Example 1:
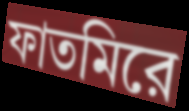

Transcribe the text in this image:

ফাতমিরে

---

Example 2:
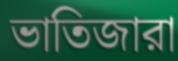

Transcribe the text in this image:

ভাতিজারা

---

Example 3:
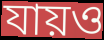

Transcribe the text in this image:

যায়ও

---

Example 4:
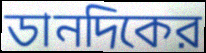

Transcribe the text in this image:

ডানদিকের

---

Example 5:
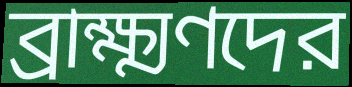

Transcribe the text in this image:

ব্রাক্ষ্মণদের